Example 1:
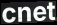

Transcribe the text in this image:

cnet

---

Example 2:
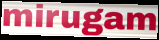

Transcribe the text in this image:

mirugam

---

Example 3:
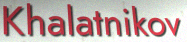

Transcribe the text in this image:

Khalatnikov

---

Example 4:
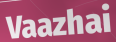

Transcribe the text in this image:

Vaazhai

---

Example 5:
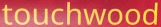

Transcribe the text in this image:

touchwood